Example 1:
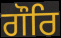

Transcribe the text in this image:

ਗੌਰਿ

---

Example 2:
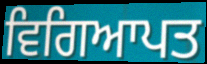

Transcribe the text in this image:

ਵਿਗਿਆਪਤ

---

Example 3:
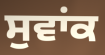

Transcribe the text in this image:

ਸੁਵਾਂਕ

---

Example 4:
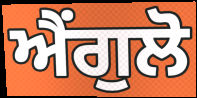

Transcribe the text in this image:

ਐਂਗੁਲੋ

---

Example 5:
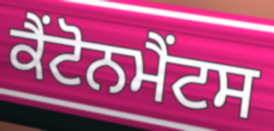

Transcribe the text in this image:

ਕੈਂਟੋਨਮੈਂਟਸ